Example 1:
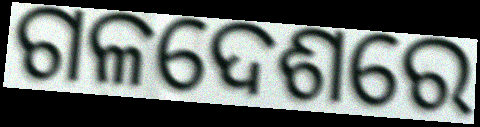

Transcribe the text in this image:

ଗଳଦେଶରେ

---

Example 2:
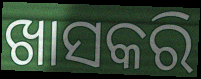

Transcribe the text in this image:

ଖାସକରି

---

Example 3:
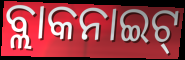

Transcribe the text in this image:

ବ୍ଲାକନାଇଟ୍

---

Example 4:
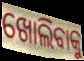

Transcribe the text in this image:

ଖୋଲିବାକୁ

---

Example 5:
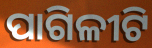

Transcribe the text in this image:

ପାଗିଳୀଟି